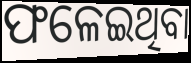
ଫଳେଇଥିବା